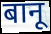
बानू